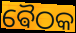
ଵୈଠକ